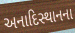
અનાદિસ્થાનના